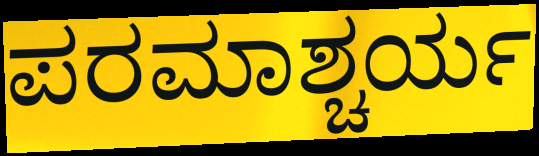
ಪರಮಾಶ್ಚರ್ಯ